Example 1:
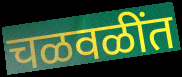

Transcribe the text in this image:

चळवळींत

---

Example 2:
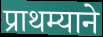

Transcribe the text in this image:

प्राथम्याने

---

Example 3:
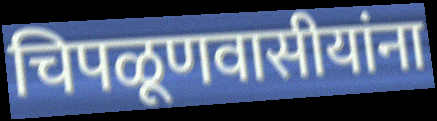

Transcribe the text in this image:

चिपळूणवासीयांना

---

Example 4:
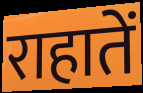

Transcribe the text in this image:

राहातें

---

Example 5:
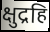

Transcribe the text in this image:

क्षुद्रहि